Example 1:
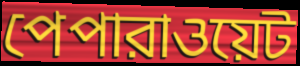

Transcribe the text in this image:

পেপারাওয়েট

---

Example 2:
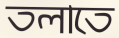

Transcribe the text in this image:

তলাতে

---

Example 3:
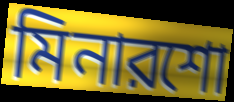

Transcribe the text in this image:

মিনারশো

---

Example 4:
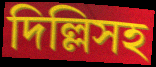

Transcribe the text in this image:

দিল্লিসহ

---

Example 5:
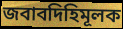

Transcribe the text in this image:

জবাবদিহিমূলক